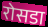
रोसडा